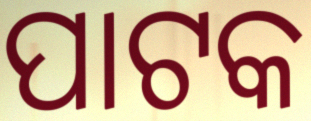
ପାଟକ